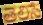
తెలిసే